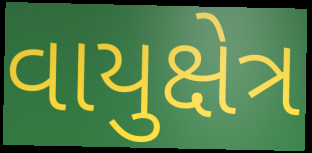
વાયુક્ષેત્ર